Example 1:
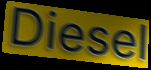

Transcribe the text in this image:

Diesel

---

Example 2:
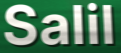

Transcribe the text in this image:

Salil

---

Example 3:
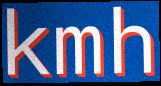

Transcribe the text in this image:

kmh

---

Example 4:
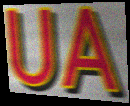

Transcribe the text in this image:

UA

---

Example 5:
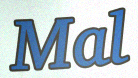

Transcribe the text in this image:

Mal